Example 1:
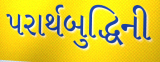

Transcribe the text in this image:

પરાર્થબુદ્ધિની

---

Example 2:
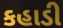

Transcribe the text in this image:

કહાડી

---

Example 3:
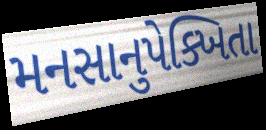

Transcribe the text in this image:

મનસાનુપેક્ખિતા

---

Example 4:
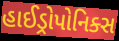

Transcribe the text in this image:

હાઈડ્રોપોનિક્સ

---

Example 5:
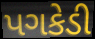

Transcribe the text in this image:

પગકેડી